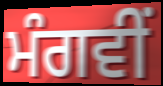
ਮੰਗਵੀਂ